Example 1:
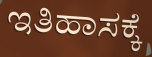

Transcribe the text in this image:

ಇತಿಹಾಸಕ್ಕೆ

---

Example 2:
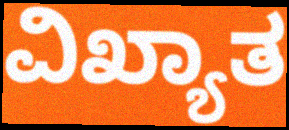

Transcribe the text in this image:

ವಿಖ್ಯಾತ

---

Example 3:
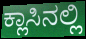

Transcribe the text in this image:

ಕ್ಲಾಸಿನಲ್ಲಿ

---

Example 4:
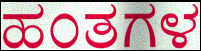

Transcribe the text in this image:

ಹಂತಗಳ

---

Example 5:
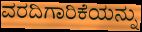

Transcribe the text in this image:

ವರದಿಗಾರಿಕೆಯನ್ನು